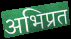
अभिप्रत